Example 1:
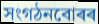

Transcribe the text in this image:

সংগঠনবোৰৰ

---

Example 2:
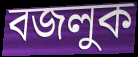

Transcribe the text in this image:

বজলুক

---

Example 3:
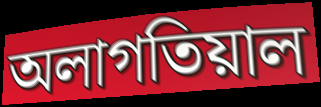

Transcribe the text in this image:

অলাগতিয়াল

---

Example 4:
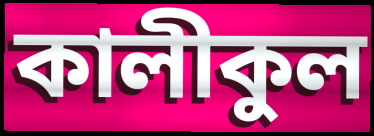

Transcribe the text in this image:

কালীকুল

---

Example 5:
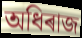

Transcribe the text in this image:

অধিৰাজ